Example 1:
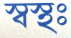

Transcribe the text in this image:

স্বস্থঃ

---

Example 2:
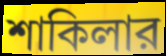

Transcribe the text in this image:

শাকিলার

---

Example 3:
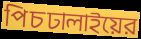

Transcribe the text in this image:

পিচঢালাইয়ের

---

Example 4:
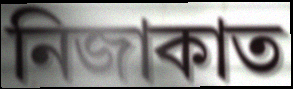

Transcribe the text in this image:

নিজাকাত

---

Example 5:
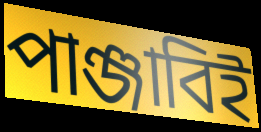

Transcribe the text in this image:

পাঞ্জাবিই